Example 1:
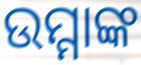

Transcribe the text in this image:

ଉମ୍ମାଙ୍କ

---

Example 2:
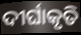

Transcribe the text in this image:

ଦୀର୍ଘାକୃତି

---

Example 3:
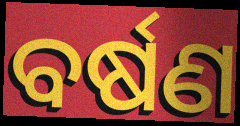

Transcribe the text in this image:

ବର୍ଷଣ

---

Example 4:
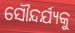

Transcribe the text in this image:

ସୌନ୍ଦର୍ଯ୍ଯକୁ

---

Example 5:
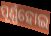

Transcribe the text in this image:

ପୂର୍ଣ୍ଣହୋଇ